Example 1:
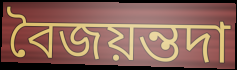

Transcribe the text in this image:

বৈজয়ন্তদা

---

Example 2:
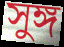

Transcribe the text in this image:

সুঙ্গ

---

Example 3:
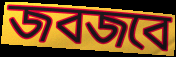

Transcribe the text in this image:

জবজবে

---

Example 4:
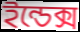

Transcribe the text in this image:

ইন্ডেক্স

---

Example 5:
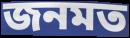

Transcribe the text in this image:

জনমত